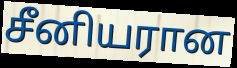
சீனியரான